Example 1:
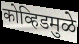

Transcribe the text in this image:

कोव्हिडमुळे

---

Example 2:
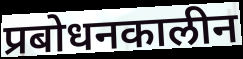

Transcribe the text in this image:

प्रबोधनकालीन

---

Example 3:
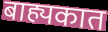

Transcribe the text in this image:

बाह्यकात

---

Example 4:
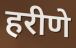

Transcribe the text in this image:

हरीणे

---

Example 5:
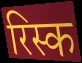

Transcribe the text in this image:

रिस्क